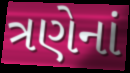
ત્રણેનાં